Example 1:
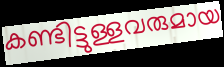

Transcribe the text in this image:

കണ്ടിട്ടുള്ളവരുമായ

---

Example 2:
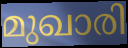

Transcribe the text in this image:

മുഖാരി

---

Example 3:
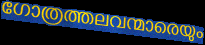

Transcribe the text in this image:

ഗോത്രത്തലവന്മാരെയും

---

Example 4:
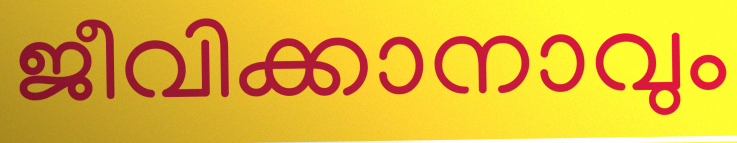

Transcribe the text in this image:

ജീവിക്കാനാവും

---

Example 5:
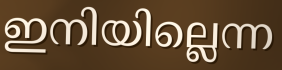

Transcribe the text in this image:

ഇനിയില്ലെന്ന